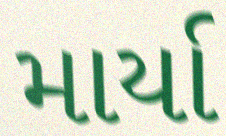
માર્યા